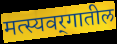
मत्स्यवर्गातील